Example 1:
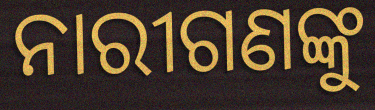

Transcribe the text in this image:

ନାରୀଗଣଙ୍କୁ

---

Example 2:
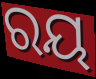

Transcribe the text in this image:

ରୟ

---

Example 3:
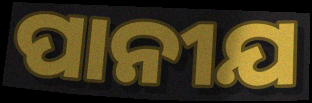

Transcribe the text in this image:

ପାନୀଯ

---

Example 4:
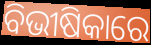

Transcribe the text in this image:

ବିଭୀଷିକାରେ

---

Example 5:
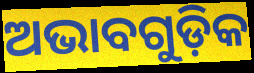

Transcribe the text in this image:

ଅଭାବଗୁଡ଼ିକ